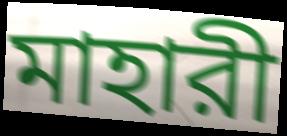
মাহারী